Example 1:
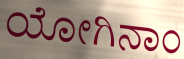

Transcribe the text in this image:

ಯೋಗಿನಾಂ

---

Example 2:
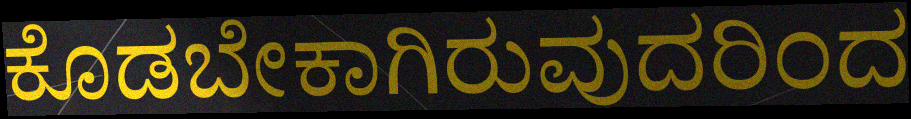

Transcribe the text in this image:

ಕೊಡಬೇಕಾಗಿರುವುದರಿಂದ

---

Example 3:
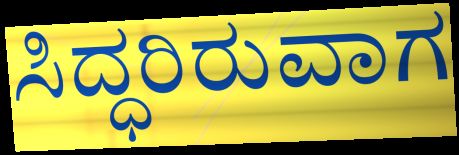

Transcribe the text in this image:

ಸಿದ್ಧರಿರುವಾಗ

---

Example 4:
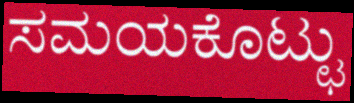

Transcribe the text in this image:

ಸಮಯಕೊಟ್ಟು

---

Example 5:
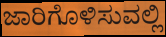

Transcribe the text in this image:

ಜಾರಿಗೊಳಿಸುವಲ್ಲಿ